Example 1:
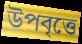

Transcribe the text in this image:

উপবৃত্তে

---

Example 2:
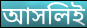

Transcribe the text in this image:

আসলিই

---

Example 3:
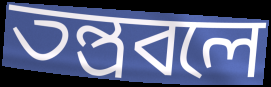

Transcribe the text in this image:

তন্ত্রবলে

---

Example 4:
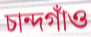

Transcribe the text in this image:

চান্দগাঁও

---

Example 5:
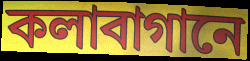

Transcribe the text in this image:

কলাবাগানে